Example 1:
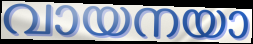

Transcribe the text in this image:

വായനയാ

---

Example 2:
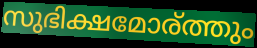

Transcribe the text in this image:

സുഭിക്ഷമോര്ത്തും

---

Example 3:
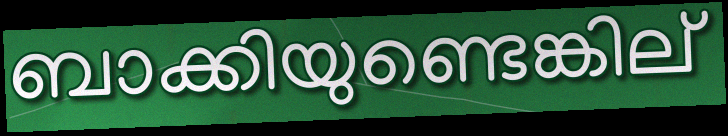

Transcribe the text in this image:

ബാക്കിയുണ്ടെങ്കില്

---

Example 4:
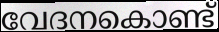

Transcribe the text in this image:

വേദനകൊണ്ട്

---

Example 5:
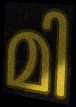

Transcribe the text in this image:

മി